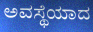
ಅವಸ್ಥೆಯಾದ